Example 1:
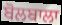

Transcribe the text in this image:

ਬੋਲਬਾਲਾ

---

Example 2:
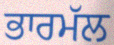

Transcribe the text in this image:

ਭਾਰਮੱਲ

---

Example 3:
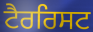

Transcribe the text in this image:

ਟੈਰਰਿਸਟ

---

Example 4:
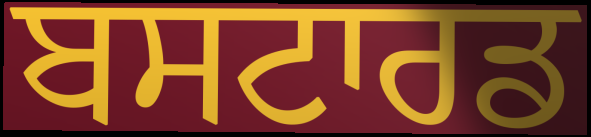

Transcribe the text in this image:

ਬਸਟਾਰਡ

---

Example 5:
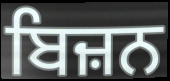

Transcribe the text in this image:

ਬਿਜ਼ਨ